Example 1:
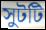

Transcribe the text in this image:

সুটটি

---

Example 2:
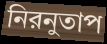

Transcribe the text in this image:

নিরনুতাপ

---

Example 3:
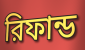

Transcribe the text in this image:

রিফান্ড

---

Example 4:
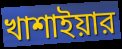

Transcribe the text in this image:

খাশাইয়ার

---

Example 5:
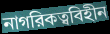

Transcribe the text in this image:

নাগরিকত্ববিহীন